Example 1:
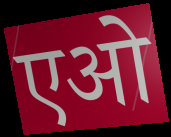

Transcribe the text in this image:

एओ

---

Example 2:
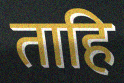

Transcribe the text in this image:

ताहि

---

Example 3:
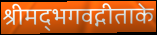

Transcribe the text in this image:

श्रीमद्भगवद्गीताके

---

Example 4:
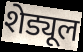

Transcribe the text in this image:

शेड्यूल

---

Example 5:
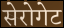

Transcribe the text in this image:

सेरोगेट